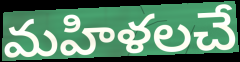
మహిళలచే